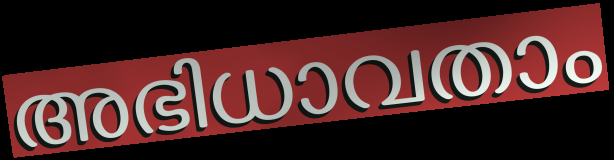
അഭിധാവതാം